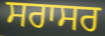
ਸਰਾਸਰ